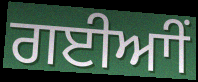
ਗਈਆੀਂ